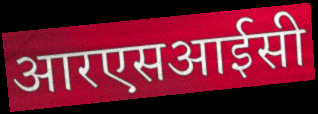
आरएसआईसी